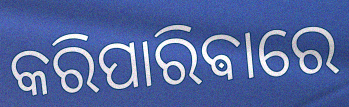
କରିପାରିଵାରେ